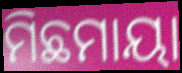
ମିଛମାୟା